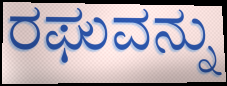
ರಘುವನ್ನು